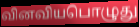
வினவியபொழுது